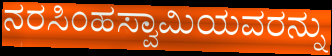
ನರಸಿಂಹಸ್ವಾಮಿಯವರನ್ನು